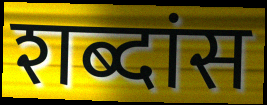
शब्दांस